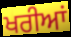
ਖਰੀਆਂ